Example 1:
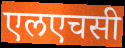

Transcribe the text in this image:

एलएचसी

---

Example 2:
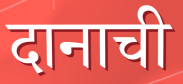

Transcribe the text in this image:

दानाची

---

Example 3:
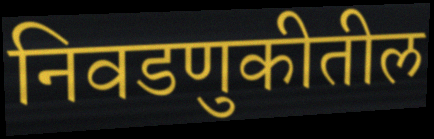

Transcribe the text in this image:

निवडणुकीतील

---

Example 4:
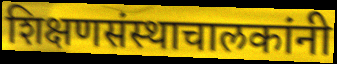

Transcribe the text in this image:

शिक्षणसंस्थाचालकांनी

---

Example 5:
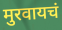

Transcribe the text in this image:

मुरवायचं